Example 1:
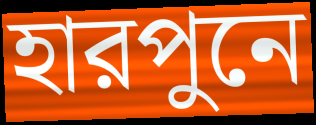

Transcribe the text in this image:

হারপুনে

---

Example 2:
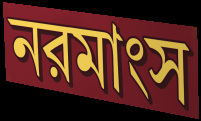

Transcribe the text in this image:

নরমাংস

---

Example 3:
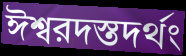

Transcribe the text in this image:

ঈশ্বরদস্তদর্থং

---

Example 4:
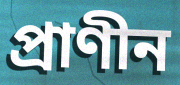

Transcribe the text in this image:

প্রাণীন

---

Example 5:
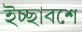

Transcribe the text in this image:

ইচ্ছাবশে